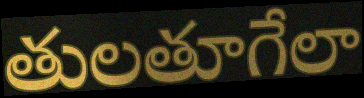
తులతూగేలా